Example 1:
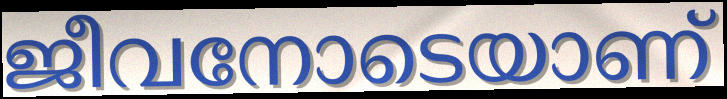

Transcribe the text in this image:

ജീവനോടെയാണ്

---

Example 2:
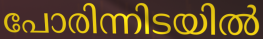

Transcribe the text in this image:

പോരിന്നിടയിൽ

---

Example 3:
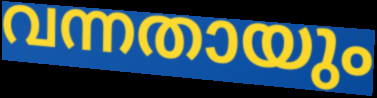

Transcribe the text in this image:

വന്നതായും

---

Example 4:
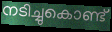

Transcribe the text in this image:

നടിച്ചുകൊണ്ട്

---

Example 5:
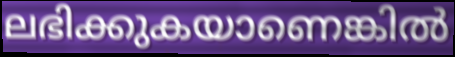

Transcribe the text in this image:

ലഭിക്കുകയാണെങ്കിൽ